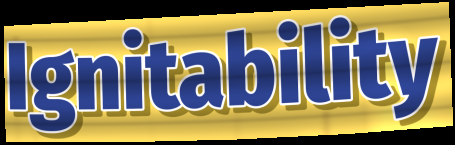
Ignitability